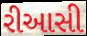
રીઆસી